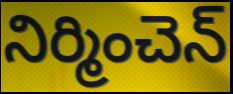
నిర్మించెన్